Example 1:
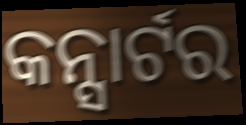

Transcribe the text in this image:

କନ୍ସାର୍ଟର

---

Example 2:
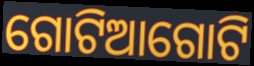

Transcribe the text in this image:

ଗୋଟିଆଗୋଟି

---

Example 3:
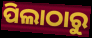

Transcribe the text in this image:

ପିଲାଠାରୁ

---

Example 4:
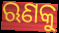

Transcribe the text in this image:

ଋଣକୁ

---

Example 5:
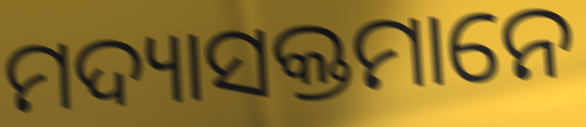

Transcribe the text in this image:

ମଦ୍ୟାସକ୍ତମାନେ